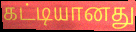
கட்டியானது